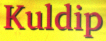
Kuldip